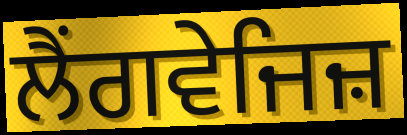
ਲੈਂਗਵੇਜਿਜ਼